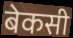
बेकसी